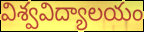
విశ్వవిద్యాలయం